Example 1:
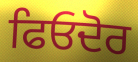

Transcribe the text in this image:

ਫਿਓਦੋਰ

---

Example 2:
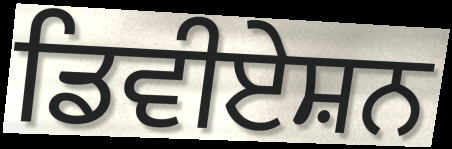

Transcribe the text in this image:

ਡਿਵੀਏਸ਼ਨ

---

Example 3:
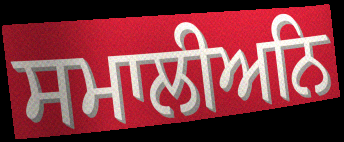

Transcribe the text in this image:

ਸਮਾਲੀਅਨਿ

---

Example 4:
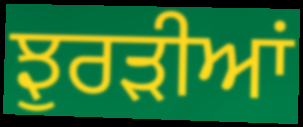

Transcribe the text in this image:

ਝੁਰੜੀਆਂ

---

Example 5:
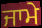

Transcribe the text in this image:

ਜਾਮੇ